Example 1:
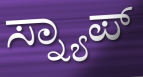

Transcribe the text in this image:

ಸ್ನ್ಯಾಪ್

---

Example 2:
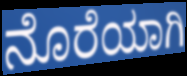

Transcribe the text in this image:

ನೊರೆಯಾಗಿ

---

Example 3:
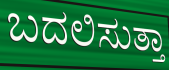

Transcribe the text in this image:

ಬದಲಿಸುತ್ತಾ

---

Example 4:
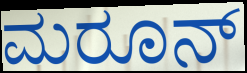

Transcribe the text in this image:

ಮರೂನ್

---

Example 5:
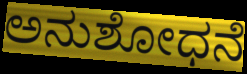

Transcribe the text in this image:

ಅನುಶೋಧನೆ